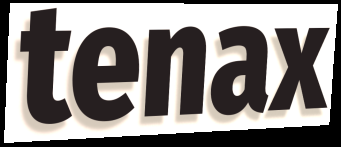
tenax